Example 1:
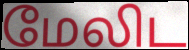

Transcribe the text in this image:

மேலிட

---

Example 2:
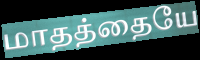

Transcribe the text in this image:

மாதத்தையே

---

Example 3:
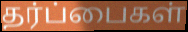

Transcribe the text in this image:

தர்ப்பைகள்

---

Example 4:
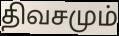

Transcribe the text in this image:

திவசமும்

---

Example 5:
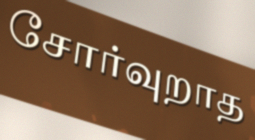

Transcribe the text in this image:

சோர்வுறாத